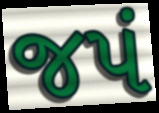
જપં